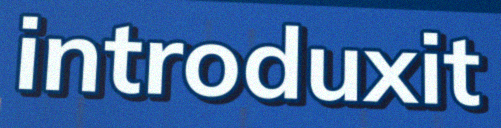
introduxit